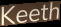
Keeth